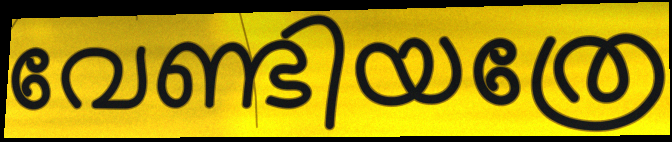
വേണ്ടിയത്രേ